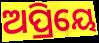
ଅପ୍ରିୟେ